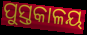
ପୁସ୍ତକାଳୟ